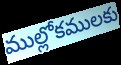
ముల్లోకములకు